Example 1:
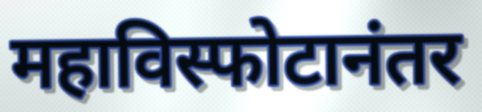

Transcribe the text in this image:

महाविस्फोटानंतर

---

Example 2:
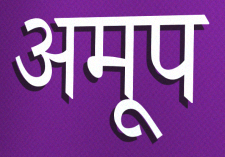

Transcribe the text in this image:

अमूप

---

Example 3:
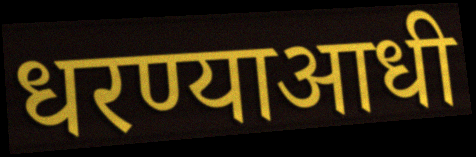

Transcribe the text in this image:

धरण्याआधी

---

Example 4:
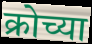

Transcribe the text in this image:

क्रोच्या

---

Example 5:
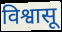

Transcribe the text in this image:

विश्वासू